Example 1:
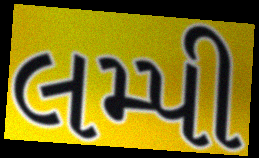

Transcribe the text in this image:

લમ્પી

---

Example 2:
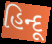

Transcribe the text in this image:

હિન્દૂ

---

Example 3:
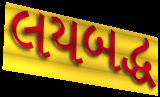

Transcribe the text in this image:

લયબદ્ધ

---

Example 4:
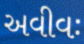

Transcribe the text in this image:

અવીવઃ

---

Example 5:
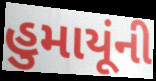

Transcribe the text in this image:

હુમાયૂંની